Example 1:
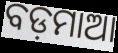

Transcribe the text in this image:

ବଡ଼ମାଆ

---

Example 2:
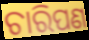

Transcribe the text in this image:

ଚାରିପଣ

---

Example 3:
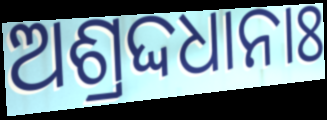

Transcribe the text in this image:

ଅଶ୍ରଦ୍ଦଧାନାଃ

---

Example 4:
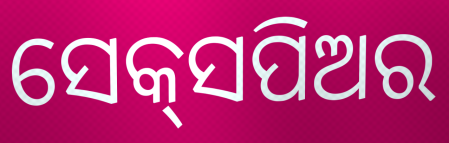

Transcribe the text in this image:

ସେକ୍‌ସପିଅର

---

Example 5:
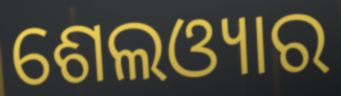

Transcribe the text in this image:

ଶେଲଓ୍ୟାର